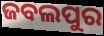
ଜବଲପୁର